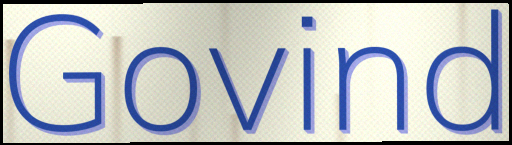
Govind